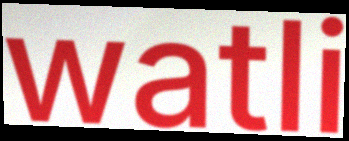
watli